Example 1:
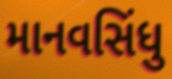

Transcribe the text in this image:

માનવસિંધુ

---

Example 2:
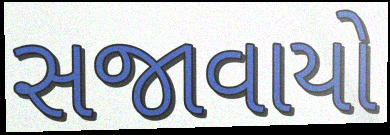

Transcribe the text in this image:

સજાવાયો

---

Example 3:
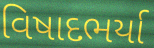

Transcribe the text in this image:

વિષાદભર્યા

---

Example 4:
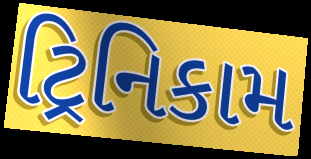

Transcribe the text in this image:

ટ્રિનિકામ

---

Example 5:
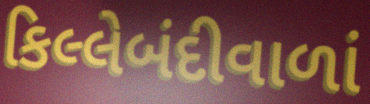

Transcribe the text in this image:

કિલ્લેબંદીવાળાં